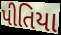
પીતિયા